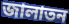
জালাতন